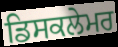
ਡਿਸਕਲੇਮਰ